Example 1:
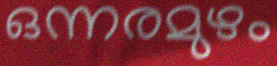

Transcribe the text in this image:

ഒന്നരമുഴം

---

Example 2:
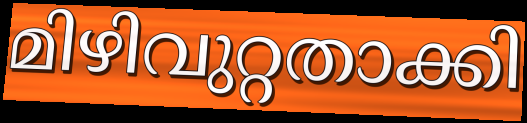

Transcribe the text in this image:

മിഴിവുറ്റതാക്കി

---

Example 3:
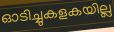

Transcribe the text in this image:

ഓടിച്ചുകളകയില്ല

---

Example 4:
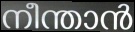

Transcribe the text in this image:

നീന്താൻ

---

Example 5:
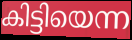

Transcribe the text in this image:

കിട്ടിയെന്ന